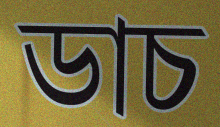
ডাচ